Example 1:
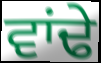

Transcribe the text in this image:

ਵਾਂਢੇ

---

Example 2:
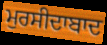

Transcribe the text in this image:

ਮੁਰਸੀਦਾਬਾਦ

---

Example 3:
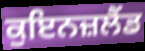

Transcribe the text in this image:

ਕੁਇਨਜ਼ਲੈਂਡ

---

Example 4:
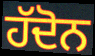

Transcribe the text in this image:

ਹੱਦੋਨ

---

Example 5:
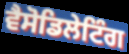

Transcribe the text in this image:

ਵੈਸੋਡਿਲੇਟਿੰਗ